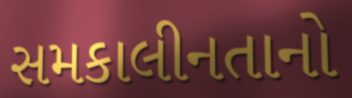
સમકાલીનતાનો